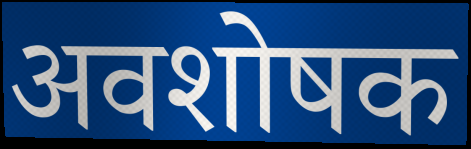
अवशोषक